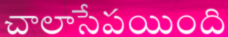
చాలాసేపయింది